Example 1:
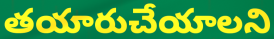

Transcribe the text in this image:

తయారుచేయాలని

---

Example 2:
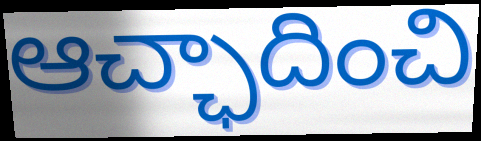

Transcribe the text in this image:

ఆచ్ఛాదించి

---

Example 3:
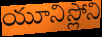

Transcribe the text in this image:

యూనిస్లోని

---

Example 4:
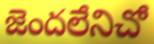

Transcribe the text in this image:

జెందలేనిచో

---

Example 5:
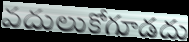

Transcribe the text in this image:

వదులుకోగూడదు